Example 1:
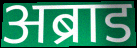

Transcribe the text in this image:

अब्राड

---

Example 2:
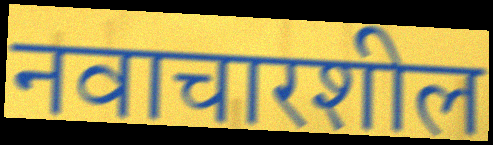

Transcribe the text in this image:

नवाचारशील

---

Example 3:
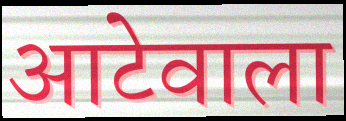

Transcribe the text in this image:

आटेवाला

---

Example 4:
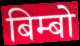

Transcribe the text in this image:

बिम्बो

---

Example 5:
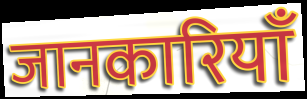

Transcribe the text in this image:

जानकारियाँ